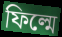
ফিল্মে